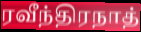
ரவீந்திரநாத்